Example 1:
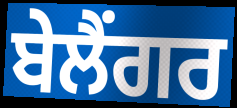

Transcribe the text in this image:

ਬੇਲੈਂਗਰ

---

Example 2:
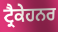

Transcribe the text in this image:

ਟ੍ਰੈਕੇਹਨਰ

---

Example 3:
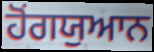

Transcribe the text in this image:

ਹੋਂਗਯੁਆਨ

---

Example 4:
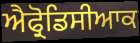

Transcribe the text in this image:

ਐਫ੍ਰੋਡਿਸੀਆਕ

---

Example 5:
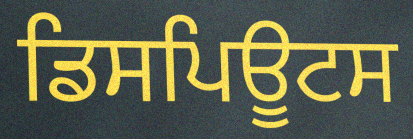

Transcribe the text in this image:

ਡਿਸਪਿਊਟਸ